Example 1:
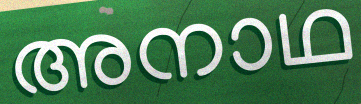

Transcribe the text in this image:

അനാഥ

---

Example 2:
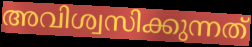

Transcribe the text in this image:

അവിശ്വസിക്കുന്നത്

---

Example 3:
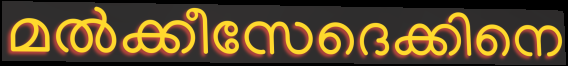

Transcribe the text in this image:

മൽക്കീസേദെക്കിനെ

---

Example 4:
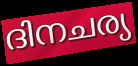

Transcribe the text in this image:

ദിനചര്യ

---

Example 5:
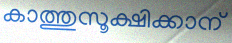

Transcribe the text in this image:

കാത്തുസൂക്ഷിക്കാന്